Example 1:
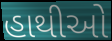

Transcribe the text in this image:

હાથીઓ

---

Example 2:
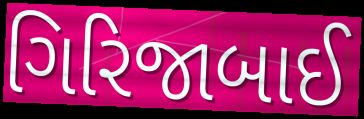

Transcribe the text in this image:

ગિરિજાબાઈ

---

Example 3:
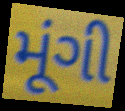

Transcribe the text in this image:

મૂંગી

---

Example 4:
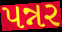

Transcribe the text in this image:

પન્નર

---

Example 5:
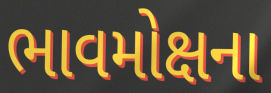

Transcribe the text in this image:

ભાવમોક્ષના